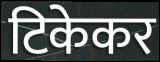
टिकेकर